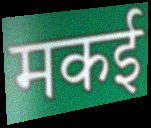
मकई